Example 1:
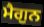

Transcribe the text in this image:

ਮੈਗੁਨ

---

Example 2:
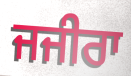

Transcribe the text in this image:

ਜਜੀਰਾ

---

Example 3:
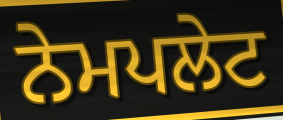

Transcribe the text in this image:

ਨੇਮਪਲੇਟ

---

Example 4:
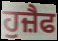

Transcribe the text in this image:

ਹੁਜ਼ੈਫ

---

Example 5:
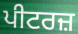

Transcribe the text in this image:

ਪੀਟਰਜ਼